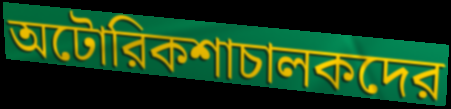
অটোরিকশাচালকদের